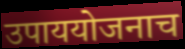
उपाययोजनाच